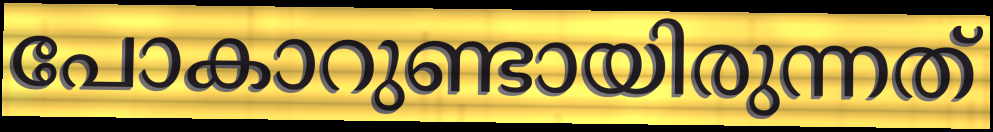
പോകാറുണ്ടായിരുന്നത്